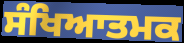
ਸੰਖਿਆਤਮਕ